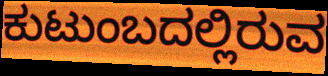
ಕುಟುಂಬದಲ್ಲಿರುವ